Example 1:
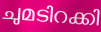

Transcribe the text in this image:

ചുമടിറക്കി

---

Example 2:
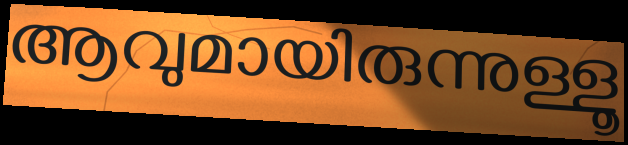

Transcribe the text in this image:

ആവുമായിരുന്നുള്ളൂ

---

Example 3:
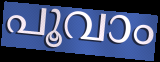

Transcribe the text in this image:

പൂവാം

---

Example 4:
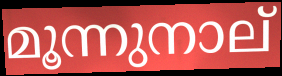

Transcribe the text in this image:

മൂന്നുനാല്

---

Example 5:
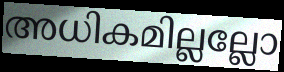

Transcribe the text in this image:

അധികമില്ലല്ലോ